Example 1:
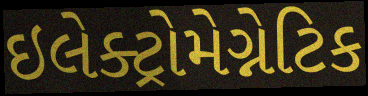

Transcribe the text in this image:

ઇલેક્ટ્રોમેગ્નેટિક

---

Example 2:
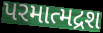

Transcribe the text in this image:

પરમાત્મદ્રશ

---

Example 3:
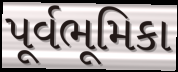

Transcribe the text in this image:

પૂર્વભૂમિકા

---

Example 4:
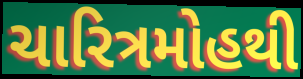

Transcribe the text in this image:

ચારિત્રમોહથી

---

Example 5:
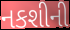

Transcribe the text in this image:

નકશીની